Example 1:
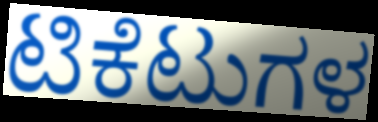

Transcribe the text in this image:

ಟಿಕೆಟುಗಳ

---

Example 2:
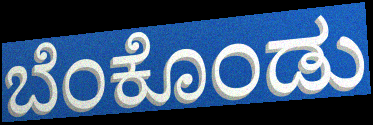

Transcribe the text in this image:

ಬೆಂಕೊಂಡು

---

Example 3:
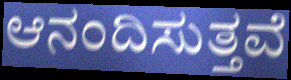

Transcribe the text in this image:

ಆನಂದಿಸುತ್ತವೆ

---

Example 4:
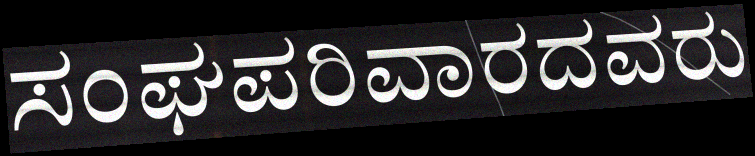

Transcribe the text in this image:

ಸಂಘಪರಿವಾರದವರು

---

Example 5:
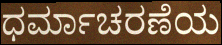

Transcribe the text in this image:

ಧರ್ಮಾಚರಣೆಯ